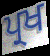
ਪ੍ਰਖ